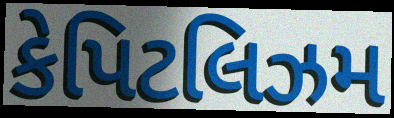
કેપિટલિઝમ